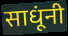
साधूंनी